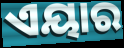
ଏୟାର